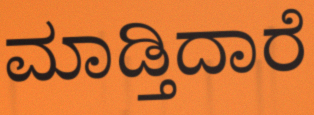
ಮಾಡ್ತಿದಾರೆ